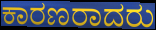
ಕಾರಣರಾದರು